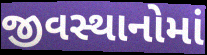
જીવસ્થાનોમાં